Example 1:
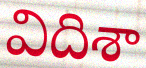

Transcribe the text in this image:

విదిశా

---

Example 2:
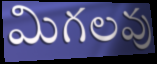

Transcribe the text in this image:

మిగలవు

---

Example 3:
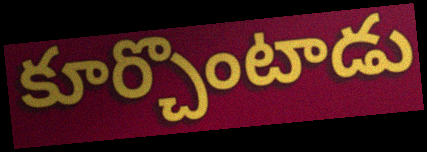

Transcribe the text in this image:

కూర్చొంటాడు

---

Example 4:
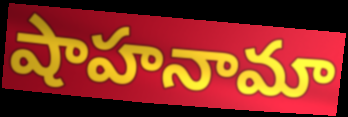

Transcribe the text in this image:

షాహనామా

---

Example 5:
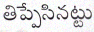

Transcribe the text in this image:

తిప్పేసినట్టు